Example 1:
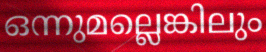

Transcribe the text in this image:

ഒന്നുമല്ലെങ്കിലും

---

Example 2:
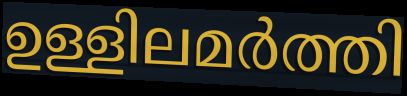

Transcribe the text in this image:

ഉള്ളിലമർത്തി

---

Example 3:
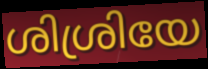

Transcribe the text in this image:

ശിശ്രിയേ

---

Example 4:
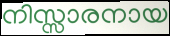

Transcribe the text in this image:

നിസ്സാരനായ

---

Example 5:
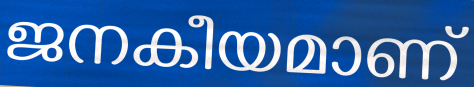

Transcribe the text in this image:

ജനകീയമാണ്